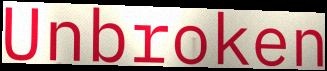
Unbroken